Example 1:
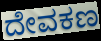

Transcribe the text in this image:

ದೇವಕಣ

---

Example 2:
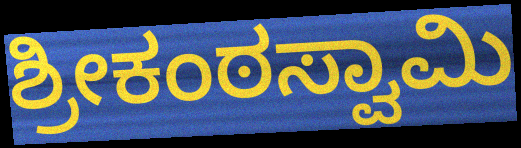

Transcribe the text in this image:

ಶ್ರೀಕಂಠಸ್ವಾಮಿ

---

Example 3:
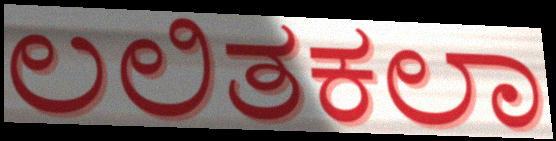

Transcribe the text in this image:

ಲಲಿತಕಲಾ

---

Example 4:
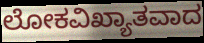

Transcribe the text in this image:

ಲೋಕವಿಖ್ಯಾತವಾದ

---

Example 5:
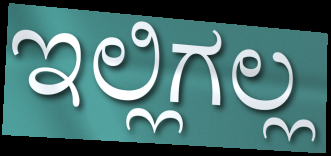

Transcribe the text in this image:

ಇಲ್ಲಿಗಲ್ಲ